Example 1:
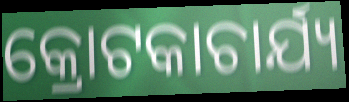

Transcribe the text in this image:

କ୍ରୋଟକାଚାର୍ଯ୍ୟ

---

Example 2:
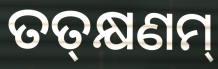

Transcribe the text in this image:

ତତ୍‌କ୍ଷଣମ୍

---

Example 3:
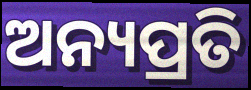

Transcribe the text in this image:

ଅନ୍ୟପ୍ରତି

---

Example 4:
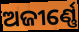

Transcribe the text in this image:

ଅଜୀର୍ଣ୍ଣେ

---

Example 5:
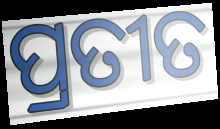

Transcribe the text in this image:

ପ୍ରତୀତ